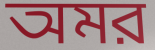
অমর